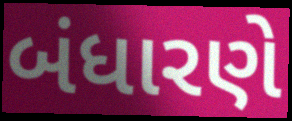
બંધારણે